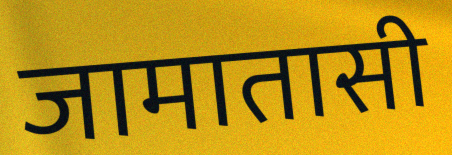
जामातासी